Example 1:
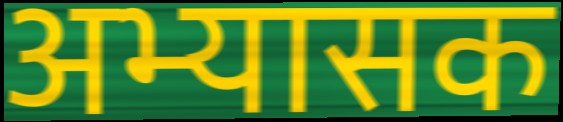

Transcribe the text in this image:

अभ्यासक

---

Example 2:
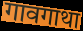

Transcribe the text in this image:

गावगाथा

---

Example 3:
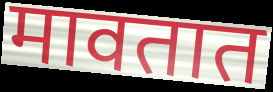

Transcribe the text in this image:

मावतात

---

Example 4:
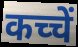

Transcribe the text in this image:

कच्चें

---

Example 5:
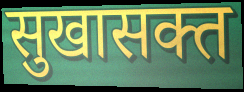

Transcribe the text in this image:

सुखासक्त